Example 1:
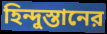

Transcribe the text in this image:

হিন্দুস্তানের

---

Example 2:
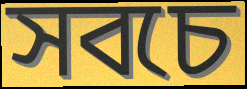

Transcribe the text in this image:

সবচে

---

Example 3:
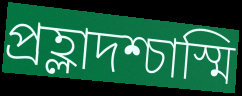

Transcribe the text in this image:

প্রহ্লাদশ্চাস্মি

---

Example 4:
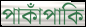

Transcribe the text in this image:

পাকাঁপাকি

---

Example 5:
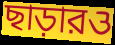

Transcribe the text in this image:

ছাড়ারও